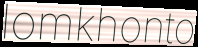
lomkhonto